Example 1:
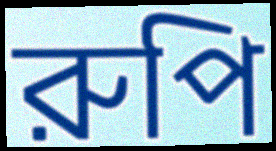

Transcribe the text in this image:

রুপি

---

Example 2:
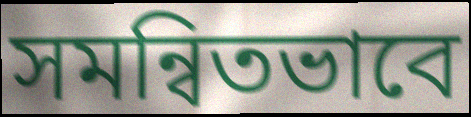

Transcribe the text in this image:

সমন্বিতভাবে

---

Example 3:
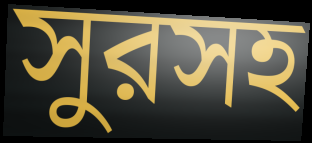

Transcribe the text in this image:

সুরসহ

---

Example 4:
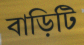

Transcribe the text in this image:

বাড়িটি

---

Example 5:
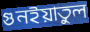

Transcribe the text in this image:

গুনইয়াতুল